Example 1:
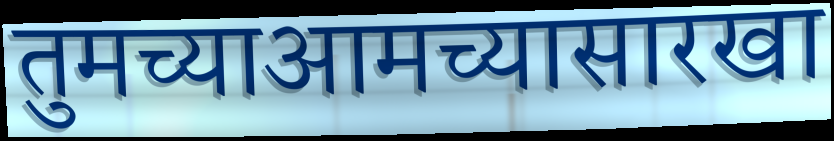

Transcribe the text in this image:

तुमच्याआमच्यासारखा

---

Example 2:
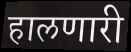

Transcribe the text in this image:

हालणारी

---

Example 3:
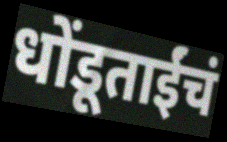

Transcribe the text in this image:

धोंडूताईंचं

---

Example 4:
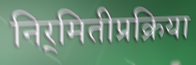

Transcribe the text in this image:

निर्मितीप्रक्रिया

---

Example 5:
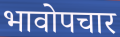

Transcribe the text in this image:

भावोपचार